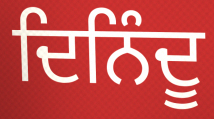
ਦਿਨਿੰਦੂ